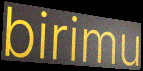
birimu